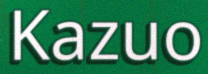
Kazuo